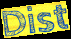
Dist